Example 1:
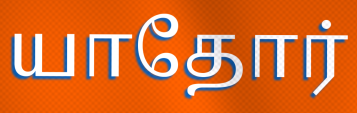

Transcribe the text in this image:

யாதோர்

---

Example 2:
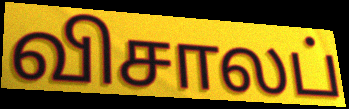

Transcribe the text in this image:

விசாலப்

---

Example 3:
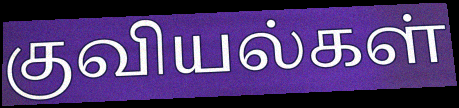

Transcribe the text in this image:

குவியல்கள்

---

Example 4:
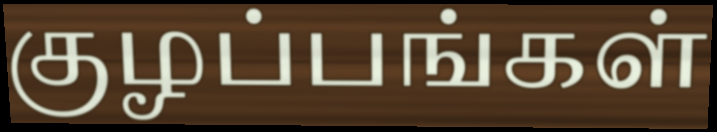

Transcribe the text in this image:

குழப்பங்கள்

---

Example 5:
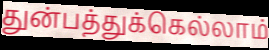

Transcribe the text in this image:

துன்பத்துக்கெல்லாம்